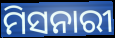
ମିସନାରୀ